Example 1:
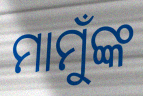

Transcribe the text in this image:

ମାମୁଁଙ୍କ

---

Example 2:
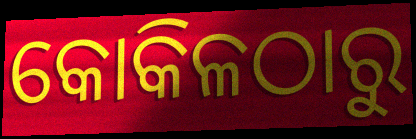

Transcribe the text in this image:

କୋକିଳଠାରୁ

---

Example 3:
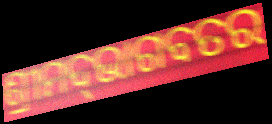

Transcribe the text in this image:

ଶ୍ରୀମଦ୍‌ଭାଗବତର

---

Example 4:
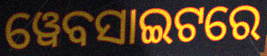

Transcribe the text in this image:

ୱେବସାଇଟରେ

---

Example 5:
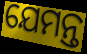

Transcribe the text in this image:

ଯେମନ୍ତ